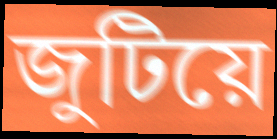
জুটিয়ে